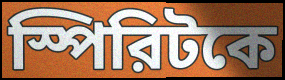
স্পিরিটকে